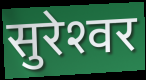
सुरेश्वर